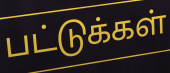
பட்டுக்கள்